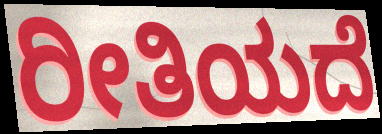
ರೀತಿಯದೆ